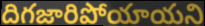
దిగజారిపోయాయని